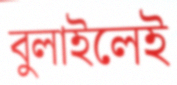
বুলাইলেই